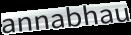
annabhau